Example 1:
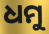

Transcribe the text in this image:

ଧମୁ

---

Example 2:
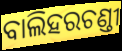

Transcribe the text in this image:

ବାଲିହରଚଣ୍ଡୀ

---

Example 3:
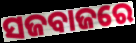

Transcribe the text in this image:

ସଜବାଜରେ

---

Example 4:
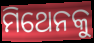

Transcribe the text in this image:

ମିଥେନକୁ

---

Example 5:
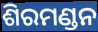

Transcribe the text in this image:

ଶିରମଣ୍ଡନ